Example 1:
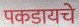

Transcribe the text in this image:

पकडायचे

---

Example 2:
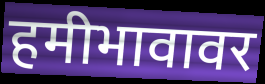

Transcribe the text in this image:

हमीभावावर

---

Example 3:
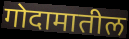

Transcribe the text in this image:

गोदामातील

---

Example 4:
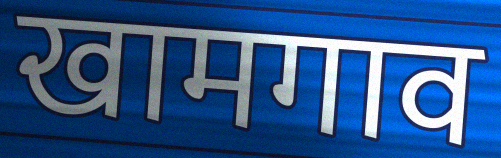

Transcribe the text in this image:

खामगाव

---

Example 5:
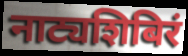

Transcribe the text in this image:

नाट्यशिबिरं